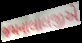
જમનાલાલજીએ